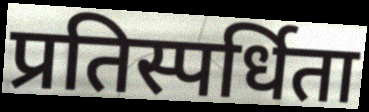
प्रतिस्पर्धिता